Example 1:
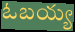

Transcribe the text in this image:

ఓబయ్య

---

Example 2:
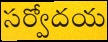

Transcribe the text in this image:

సర్వోదయ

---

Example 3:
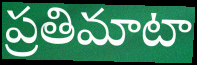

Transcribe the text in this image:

ప్రతిమాటా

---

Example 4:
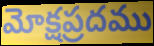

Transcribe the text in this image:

మోక్షప్రదము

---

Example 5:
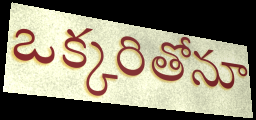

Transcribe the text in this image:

ఒక్కరితోనూ